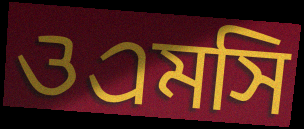
ওএমসি